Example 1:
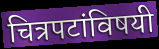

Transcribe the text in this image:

चित्रपटांविषयी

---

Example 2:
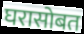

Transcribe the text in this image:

घरासोबत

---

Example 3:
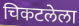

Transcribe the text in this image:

चिकटलेला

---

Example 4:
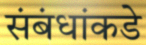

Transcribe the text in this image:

संबंधांकडे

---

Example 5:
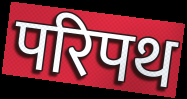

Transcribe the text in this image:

परिपथ